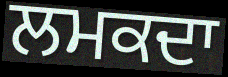
ਲਮਕਦਾ